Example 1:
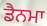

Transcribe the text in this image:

ਡੈਨਮਾ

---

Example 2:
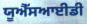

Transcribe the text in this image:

ਯੂਐੱਸਆਈਡੀ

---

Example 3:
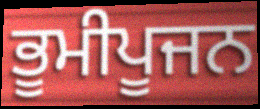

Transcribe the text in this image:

ਭੂਮੀਪੂਜਨ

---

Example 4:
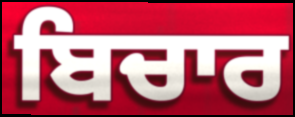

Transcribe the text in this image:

ਬਿਚਾਰ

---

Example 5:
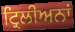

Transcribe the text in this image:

ਟ੍ਰਿਲੀਅਨਾਂ